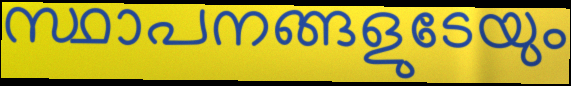
സ്ഥാപനങ്ങളുടേയും